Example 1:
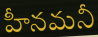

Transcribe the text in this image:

హీనమనీ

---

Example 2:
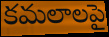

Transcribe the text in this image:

కమలాలపై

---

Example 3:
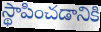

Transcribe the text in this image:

స్థాపించడానికి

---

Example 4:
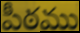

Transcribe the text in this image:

పీఠము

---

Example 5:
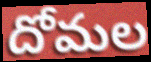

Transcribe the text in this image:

దోమల